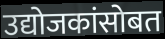
उद्योजकांसोबत